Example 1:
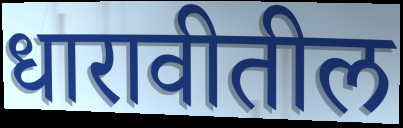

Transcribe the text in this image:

धारावीतील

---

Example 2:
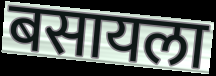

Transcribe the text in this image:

बसायला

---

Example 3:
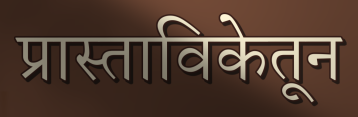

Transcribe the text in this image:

प्रास्ताविकेतून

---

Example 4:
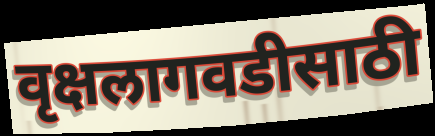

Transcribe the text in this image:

वृक्षलागवडीसाठी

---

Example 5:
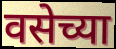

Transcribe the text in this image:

वसेच्या